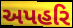
અપહરિ